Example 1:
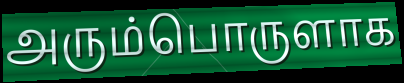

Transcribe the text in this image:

அரும்பொருளாக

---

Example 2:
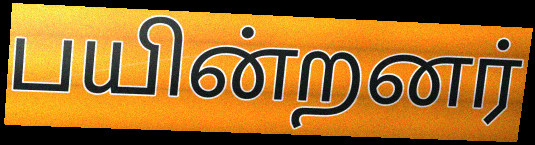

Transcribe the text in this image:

பயின்றனர்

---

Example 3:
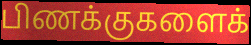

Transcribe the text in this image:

பிணக்குகளைக்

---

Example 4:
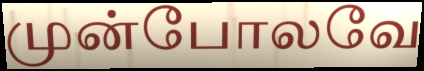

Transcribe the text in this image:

முன்போலவே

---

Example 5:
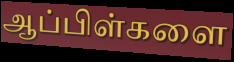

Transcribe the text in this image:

ஆப்பிள்களை